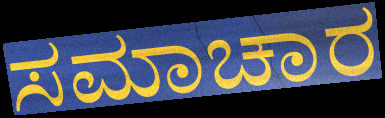
ಸಮಾಚಾರ